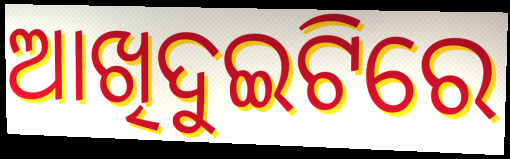
ଆଖିଦୁଇଟିରେ